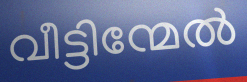
വീട്ടിന്മേൽ